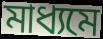
মাধ্যমে